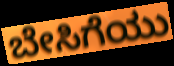
ಬೇಸಿಗೆಯು